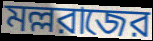
মল্লরাজের